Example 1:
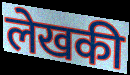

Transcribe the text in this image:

लेखकी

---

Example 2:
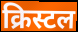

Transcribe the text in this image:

क्रिस्टल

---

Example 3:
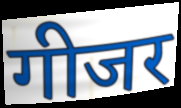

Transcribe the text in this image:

गीजर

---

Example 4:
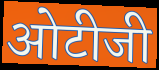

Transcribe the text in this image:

ओटीजी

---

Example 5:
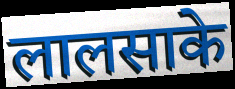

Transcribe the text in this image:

लालसाके